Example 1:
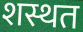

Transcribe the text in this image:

शस्थत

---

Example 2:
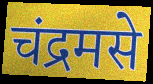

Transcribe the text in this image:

चंद्रमसे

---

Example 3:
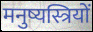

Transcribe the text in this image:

मनुष्यस्त्रियों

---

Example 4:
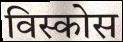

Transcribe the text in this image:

विस्कोस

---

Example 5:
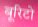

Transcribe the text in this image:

बूरिटो